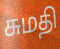
சுமதி